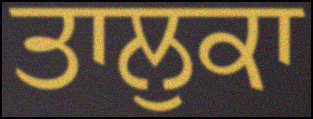
ਤਾਲੁਕਾ